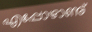
എപ്പോഴാണു്